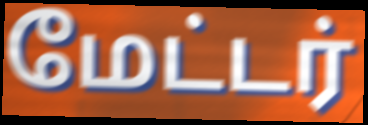
மேட்டர்